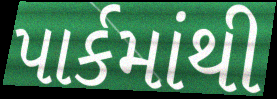
પાર્કમાંથી